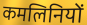
कमलिनियों